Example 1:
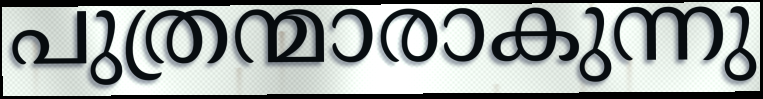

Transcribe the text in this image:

പുത്രന്മാരാകുന്നു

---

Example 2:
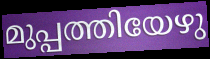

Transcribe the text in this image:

മുപ്പത്തിയേഴു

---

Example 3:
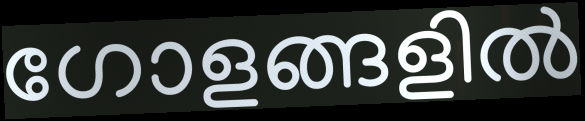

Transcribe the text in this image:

ഗോളങ്ങളിൽ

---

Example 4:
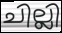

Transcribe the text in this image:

ചില്ലി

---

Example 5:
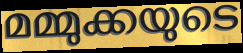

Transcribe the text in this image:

മമ്മുക്കയുടെ